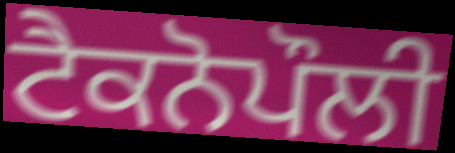
ਟੈਕਨੋਪੌਲੀ